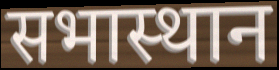
सभास्थान